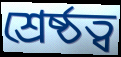
শ্ৰেষ্ঠত্ব